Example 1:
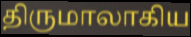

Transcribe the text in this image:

திருமாலாகிய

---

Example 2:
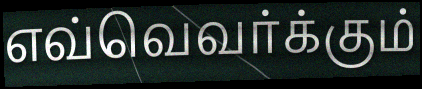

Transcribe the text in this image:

எவ்வெவர்க்கும்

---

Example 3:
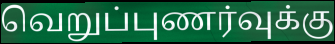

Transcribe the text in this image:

வெறுப்புணர்வுக்கு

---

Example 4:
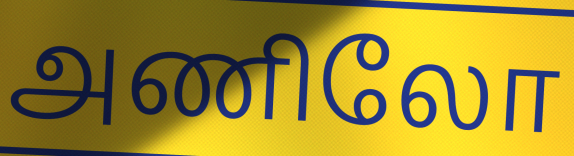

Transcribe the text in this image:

அணிலோ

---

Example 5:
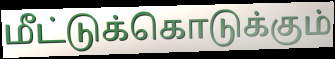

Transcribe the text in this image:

மீட்டுக்கொடுக்கும்